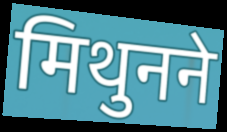
मिथुनने